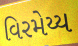
વિરમેય્ય